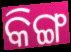
କିଙ୍ଗ